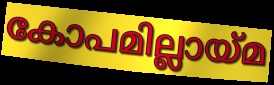
കോപമില്ലായ്മ